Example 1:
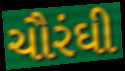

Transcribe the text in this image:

ચૌરંઘી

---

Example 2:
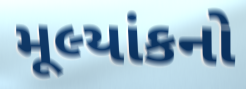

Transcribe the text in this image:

મૂલ્યાંકનો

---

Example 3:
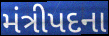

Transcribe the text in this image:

મંત્રીપદના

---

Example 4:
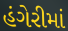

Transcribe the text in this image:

હંગેરીમાં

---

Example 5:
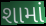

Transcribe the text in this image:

શામાં